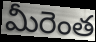
మీరెంత